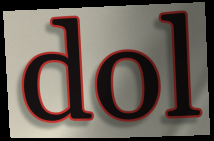
dol